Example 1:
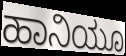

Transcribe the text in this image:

ಹಾನಿಯೂ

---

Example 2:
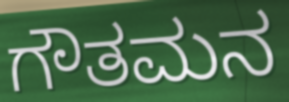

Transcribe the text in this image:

ಗೌತಮನ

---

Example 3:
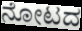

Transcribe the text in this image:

ನೋಟದ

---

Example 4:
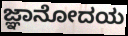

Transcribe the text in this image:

ಜ್ಞಾನೋದಯ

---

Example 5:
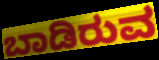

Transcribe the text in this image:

ಬಾಡಿರುವ